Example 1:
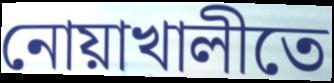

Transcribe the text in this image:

নোয়াখালীতে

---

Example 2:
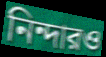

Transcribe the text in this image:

নিন্দারও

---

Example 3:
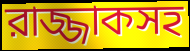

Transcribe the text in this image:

রাজ্জাকসহ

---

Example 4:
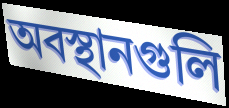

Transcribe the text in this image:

অবস্থানগুলি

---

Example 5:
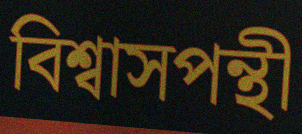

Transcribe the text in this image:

বিশ্বাসপন্থী